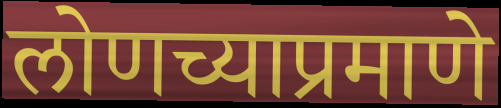
लोणच्याप्रमाणे